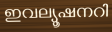
ഇവല്യൂഷനറി